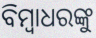
ବିମ୍ୱାଧରଙ୍କୁ